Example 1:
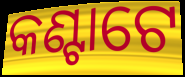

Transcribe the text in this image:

କଣ୍ଟାଟେ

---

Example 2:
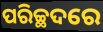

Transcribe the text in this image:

ପରିଚ୍ଛଦରେ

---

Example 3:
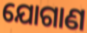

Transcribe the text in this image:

ଯୋଗାଣ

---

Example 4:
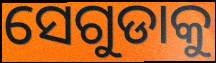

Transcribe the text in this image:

ସେଗୁଡାକୁ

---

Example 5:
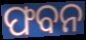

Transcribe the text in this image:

ଫବନ